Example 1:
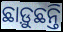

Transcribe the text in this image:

ଛାଡ଼ୁଛନ୍ତି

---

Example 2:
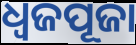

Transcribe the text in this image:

ଧ୍ୱଜପୂଜା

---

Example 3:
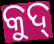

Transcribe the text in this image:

କୁଦ୍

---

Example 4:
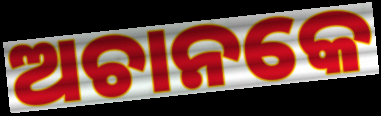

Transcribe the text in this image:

ଅଚାନକେ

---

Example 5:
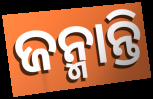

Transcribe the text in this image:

ଜନ୍ମାନ୍ତି